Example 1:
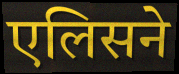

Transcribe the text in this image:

एलिसने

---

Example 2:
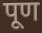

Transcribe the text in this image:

पूण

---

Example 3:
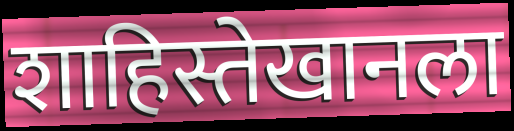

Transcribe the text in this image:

शाहिस्तेखानला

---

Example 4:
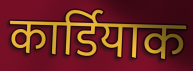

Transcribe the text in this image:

कार्डियाक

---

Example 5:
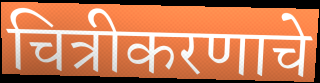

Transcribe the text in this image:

चित्रीकरणाचे